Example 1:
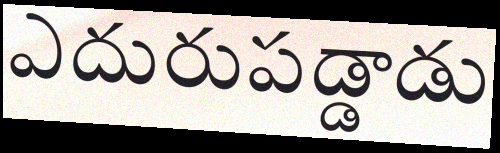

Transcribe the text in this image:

ఎదురుపడ్డాడు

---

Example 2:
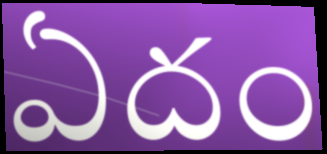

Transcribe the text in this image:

ఏదం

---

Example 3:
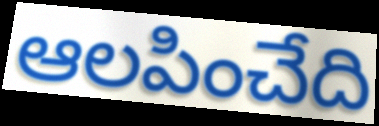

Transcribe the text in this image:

ఆలపించేది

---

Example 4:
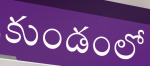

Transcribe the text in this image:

కుండంలో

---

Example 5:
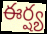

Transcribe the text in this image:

ఈర్ష్య